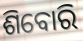
ଶିବୋରି